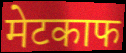
मेटकाफ